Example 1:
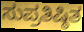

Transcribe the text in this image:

ಸುಪ್ರತಿಷ್ಠಿತ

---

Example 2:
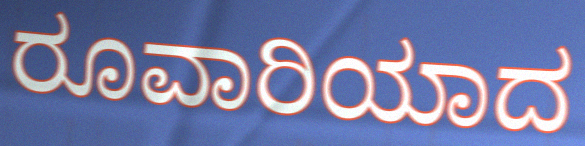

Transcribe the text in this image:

ರೂವಾರಿಯಾದ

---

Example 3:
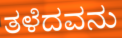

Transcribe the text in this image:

ತಳೆದವನು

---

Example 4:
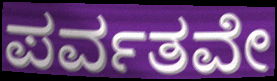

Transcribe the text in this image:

ಪರ್ವತವೇ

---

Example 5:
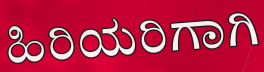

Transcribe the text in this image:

ಹಿರಿಯರಿಗಾಗಿ